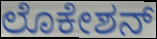
ಲೊಕೇಶನ್